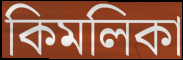
কিমলিকা